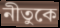
নীতুকে